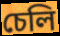
চেলি